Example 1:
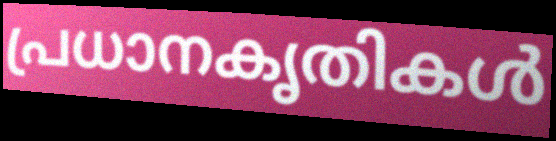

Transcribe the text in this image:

പ്രധാനകൃതികൾ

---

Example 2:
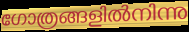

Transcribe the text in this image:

ഗോത്രങ്ങളിൽനിന്നു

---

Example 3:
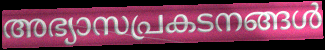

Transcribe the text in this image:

അഭ്യാസപ്രകടനങ്ങൾ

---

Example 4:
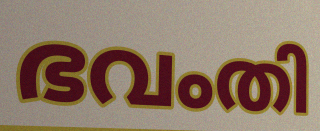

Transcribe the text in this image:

ഭവംതി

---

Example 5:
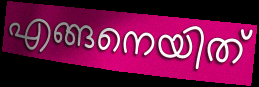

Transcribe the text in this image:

എങ്ങനെയിത്